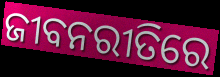
ଜୀବନରୀତିରେ